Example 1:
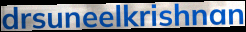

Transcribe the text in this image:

drsuneelkrishnan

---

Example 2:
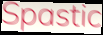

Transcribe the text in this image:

Spastic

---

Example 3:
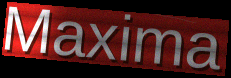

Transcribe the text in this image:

Maxima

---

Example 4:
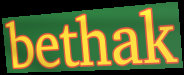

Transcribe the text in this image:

bethak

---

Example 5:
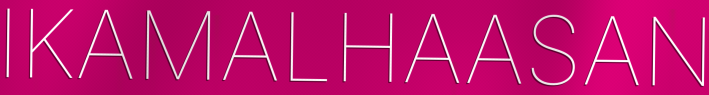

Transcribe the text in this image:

IKAMALHAASAN